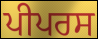
ਪੀਪਰਸ